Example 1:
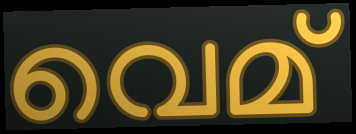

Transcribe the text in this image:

വെമ്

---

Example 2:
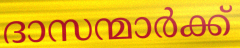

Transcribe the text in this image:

ദാസന്മാർക്ക്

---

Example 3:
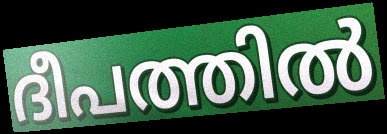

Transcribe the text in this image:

ദീപത്തിൽ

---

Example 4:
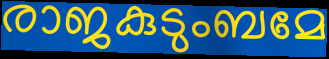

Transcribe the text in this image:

രാജകുടുംബമേ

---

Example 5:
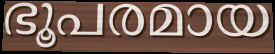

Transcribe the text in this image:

ഭൂപരമായ